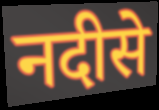
नदीसे